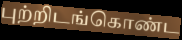
புற்றிடங்கொண்ட